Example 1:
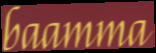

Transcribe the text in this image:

baamma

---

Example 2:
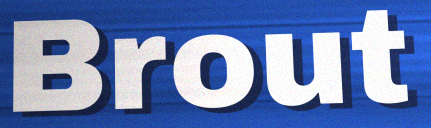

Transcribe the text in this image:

Brout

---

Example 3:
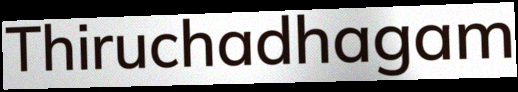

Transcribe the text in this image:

Thiruchadhagam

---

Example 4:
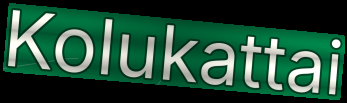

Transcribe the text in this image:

Kolukattai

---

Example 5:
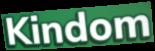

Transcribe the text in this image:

Kindom